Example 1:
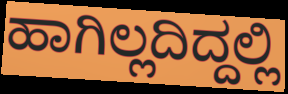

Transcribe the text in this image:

ಹಾಗಿಲ್ಲದಿದ್ದಲ್ಲಿ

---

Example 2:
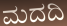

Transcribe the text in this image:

ಮದದಿ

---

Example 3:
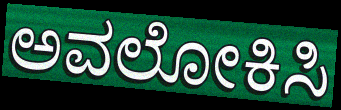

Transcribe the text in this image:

ಅವಲೋಕಿಸಿ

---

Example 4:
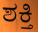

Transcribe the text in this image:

ಶಕ್ತಿ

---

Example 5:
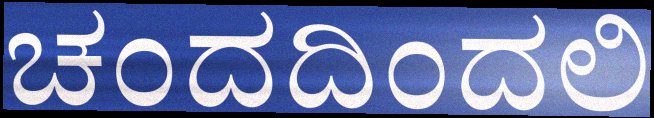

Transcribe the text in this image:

ಚಂದದಿಂದಲಿ